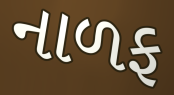
નાળફ